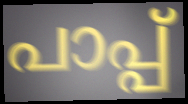
പാപ്പ്